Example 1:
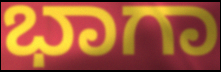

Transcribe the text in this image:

ಭಾಗಾ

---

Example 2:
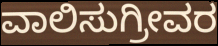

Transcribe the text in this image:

ವಾಲಿಸುಗ್ರೀವರ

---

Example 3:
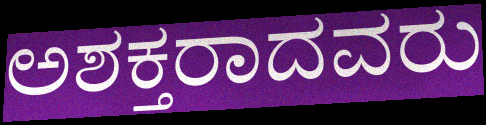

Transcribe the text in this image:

ಅಶಕ್ತರಾದವರು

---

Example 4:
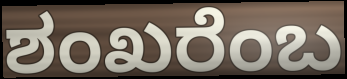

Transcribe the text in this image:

ಶಂಖರೆಂಬ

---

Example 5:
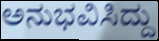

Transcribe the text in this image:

ಅನುಭವಿಸಿದ್ದು